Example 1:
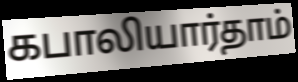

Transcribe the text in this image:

கபாலியார்தாம்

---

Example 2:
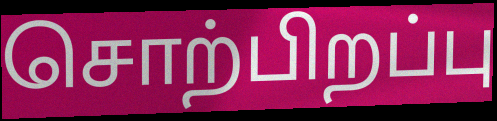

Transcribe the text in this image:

சொற்பிறப்பு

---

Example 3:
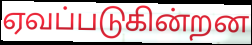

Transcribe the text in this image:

ஏவப்படுகின்றன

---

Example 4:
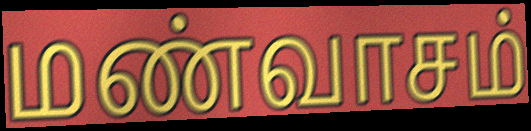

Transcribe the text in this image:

மண்வாசம்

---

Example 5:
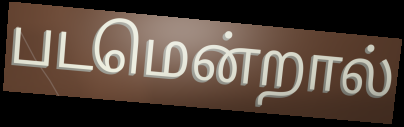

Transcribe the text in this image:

படமென்றால்